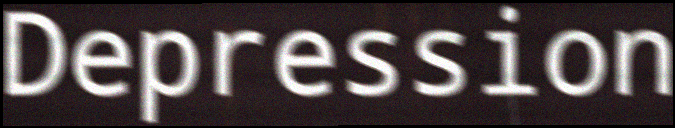
Depression